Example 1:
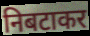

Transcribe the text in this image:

निबटाकर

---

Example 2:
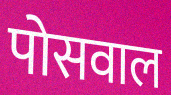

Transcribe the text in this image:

पोसवाल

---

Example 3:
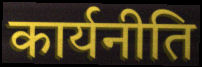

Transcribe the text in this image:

कार्यनीति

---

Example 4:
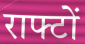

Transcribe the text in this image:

राफ्टों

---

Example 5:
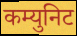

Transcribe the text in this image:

कम्युनिट